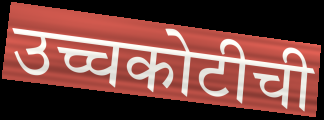
उच्चकोटीची